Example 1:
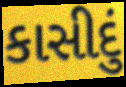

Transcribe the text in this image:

કાસીદું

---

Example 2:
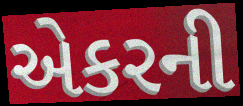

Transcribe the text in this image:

એકરની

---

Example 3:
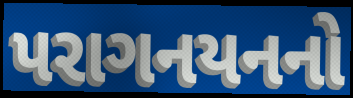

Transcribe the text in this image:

પરાગનયનનો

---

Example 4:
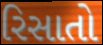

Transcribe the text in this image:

રિસાતો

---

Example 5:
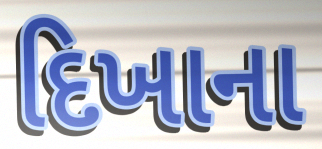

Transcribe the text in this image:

દિખાના